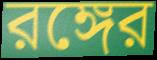
রঙ্গের